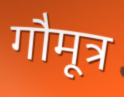
गौमूत्र